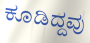
ಕೂಡಿದ್ದವು